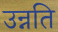
उन्नति